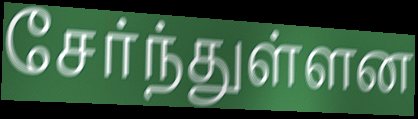
சேர்ந்துள்ளன